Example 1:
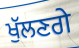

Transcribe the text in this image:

ਖੁੱਲਣਗੇ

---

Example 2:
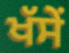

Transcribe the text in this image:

ਖੱਸੇਂ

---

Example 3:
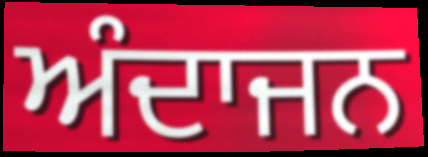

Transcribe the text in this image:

ਅੰਦਾਜਨ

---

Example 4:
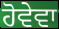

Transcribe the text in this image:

ਹੋਵੇਵਾ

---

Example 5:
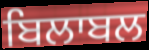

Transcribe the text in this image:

ਬਿਲਾਬਲ